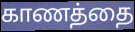
காணத்தை